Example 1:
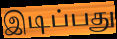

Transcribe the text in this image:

இடிப்பது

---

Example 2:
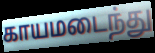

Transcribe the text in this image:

காயமடைந்து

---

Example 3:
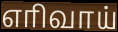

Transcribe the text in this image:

எரிவாய்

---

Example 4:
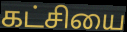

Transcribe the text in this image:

கட்சியை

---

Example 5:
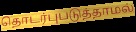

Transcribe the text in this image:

தொடர்புபடுத்தாமல்